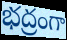
భద్రంగా